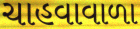
ચાહવાવાળા